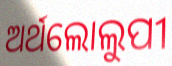
ଅର୍ଥଲୋଲୁପୀ